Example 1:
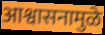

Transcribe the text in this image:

आश्वासनामुळे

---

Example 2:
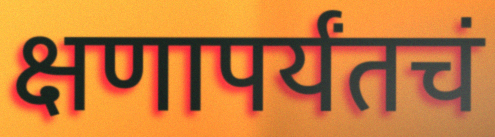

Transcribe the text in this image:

क्षणापर्यंतचं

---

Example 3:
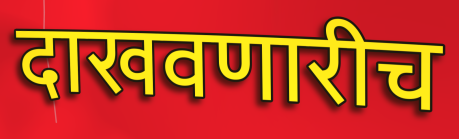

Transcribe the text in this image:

दाखवणारीच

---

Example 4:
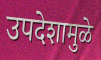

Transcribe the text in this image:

उपदेशामुळे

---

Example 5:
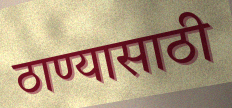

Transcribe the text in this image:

ठाण्यासाठी